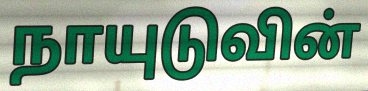
நாயுடுவின்